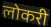
लोकरी